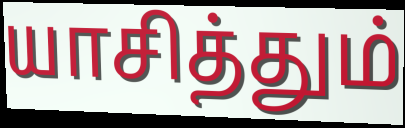
யாசித்தும்